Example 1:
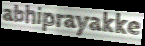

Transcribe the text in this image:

abhiprayakke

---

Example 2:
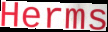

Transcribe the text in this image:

Herms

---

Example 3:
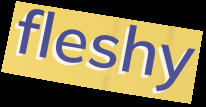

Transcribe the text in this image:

fleshy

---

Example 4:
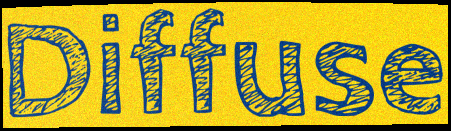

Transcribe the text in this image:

Diffuse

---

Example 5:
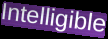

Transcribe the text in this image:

Intelligible